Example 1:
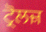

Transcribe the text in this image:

ਟ੍ਰੋਲਜ਼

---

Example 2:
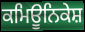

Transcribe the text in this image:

ਕਮਿਊਨਿਕੇਸ਼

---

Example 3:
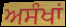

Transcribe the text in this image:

ਅਸੰਖਾਂ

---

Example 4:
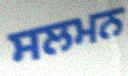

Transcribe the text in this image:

ਸਲਮਨ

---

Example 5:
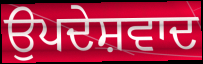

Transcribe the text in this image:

ਉਪਦੇਸ਼ਵਾਦ